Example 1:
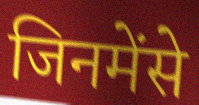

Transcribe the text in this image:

जिनमेंसे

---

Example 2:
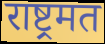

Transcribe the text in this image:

राष्ट्रमत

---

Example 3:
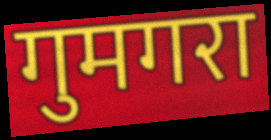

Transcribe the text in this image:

गुमगरा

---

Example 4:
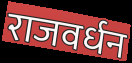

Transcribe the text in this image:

राजवर्धन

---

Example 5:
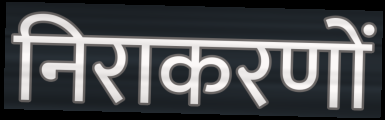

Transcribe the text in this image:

निराकरणों